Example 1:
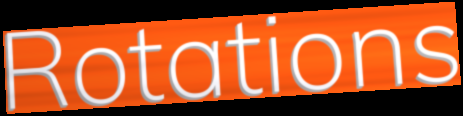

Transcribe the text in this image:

Rotations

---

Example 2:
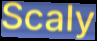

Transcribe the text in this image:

Scaly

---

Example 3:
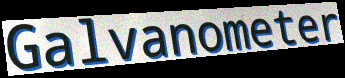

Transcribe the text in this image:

Galvanometer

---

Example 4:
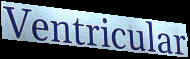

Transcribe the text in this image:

Ventricular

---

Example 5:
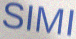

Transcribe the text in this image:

SIMI